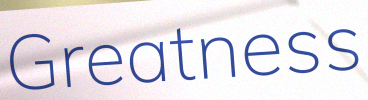
Greatness